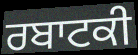
ਰਬਾਟਕੀ